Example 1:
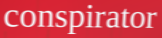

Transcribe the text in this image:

conspirator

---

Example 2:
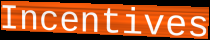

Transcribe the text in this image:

Incentives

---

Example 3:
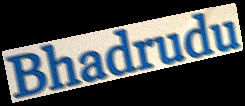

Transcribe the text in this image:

Bhadrudu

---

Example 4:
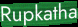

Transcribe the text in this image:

Rupkatha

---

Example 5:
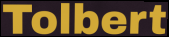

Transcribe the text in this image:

Tolbert